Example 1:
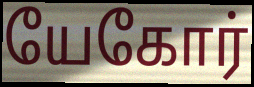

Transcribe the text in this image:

யேகோர்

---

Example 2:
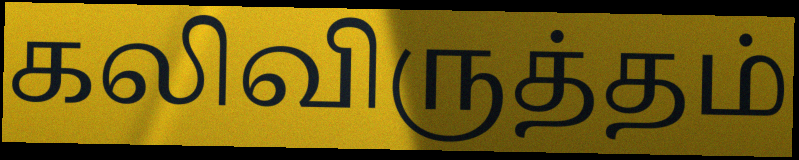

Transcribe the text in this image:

கலிவிருத்தம்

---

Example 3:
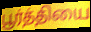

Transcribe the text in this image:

பூர்த்தியை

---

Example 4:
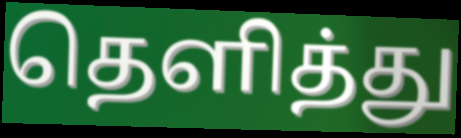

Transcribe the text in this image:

தெளித்து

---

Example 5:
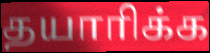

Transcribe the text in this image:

தயாரிக்க